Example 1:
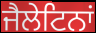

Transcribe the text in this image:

ਜੈਲੇਟਿਨਾਂ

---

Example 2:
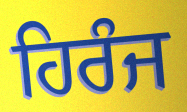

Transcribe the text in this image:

ਹਿਰੰਜ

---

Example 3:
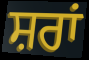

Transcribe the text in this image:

ਸ਼ਰਾਂ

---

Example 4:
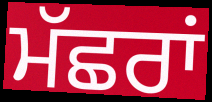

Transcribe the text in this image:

ਮੱਛਰਾਂ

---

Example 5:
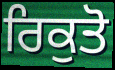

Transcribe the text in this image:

ਰਿਕੁਤੋ